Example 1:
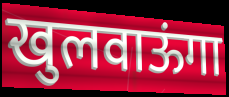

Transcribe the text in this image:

खुलवाऊंगा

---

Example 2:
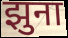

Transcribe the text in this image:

झुना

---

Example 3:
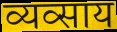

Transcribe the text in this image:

व्यव्साय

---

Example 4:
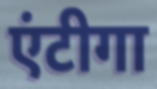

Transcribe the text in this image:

एंटीगा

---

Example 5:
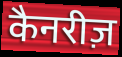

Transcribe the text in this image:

कैनरीज़